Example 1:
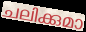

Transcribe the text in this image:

ചലിക്കുമാ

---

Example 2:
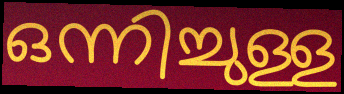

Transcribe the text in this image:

ഒന്നിച്ചുള്ള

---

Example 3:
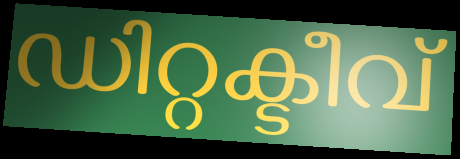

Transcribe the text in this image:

ഡിറ്റക്ടീവ്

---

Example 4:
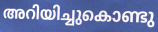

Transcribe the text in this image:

അറിയിച്ചുകൊണ്ടു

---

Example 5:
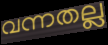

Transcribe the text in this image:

വന്നതല്ല